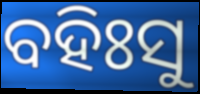
ବହିଃସୁ